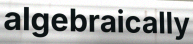
algebraically